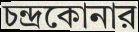
চন্দ্রকোনার